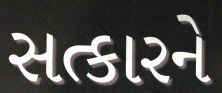
સત્કારને